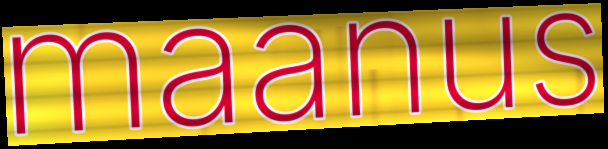
maanus